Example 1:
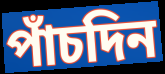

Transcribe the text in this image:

পাঁচদিন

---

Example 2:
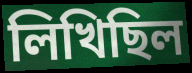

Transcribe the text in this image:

লিখিছিল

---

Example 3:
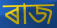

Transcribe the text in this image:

ৰাজ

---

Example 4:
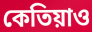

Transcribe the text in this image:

কেতিয়াও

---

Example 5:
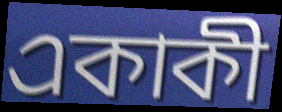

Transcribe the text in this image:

একাকী